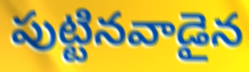
పుట్టినవాడైన